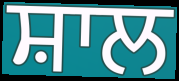
ਸ਼ਾਲ